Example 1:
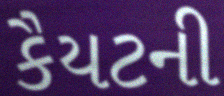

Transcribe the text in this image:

કૈયટની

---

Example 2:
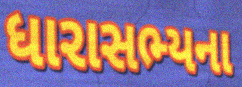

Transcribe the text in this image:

ધારાસભ્યના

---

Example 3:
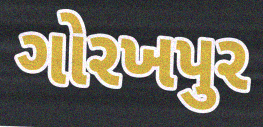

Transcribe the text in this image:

ગોરખપુર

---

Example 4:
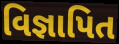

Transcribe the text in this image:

વિજ્ઞાપિત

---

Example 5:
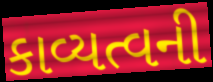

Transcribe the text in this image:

કાવ્યત્વની